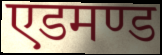
एडमण्ड